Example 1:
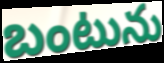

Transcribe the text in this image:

బంటును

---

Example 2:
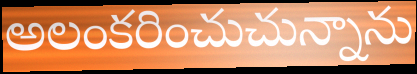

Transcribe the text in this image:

అలంకరించుచున్నాను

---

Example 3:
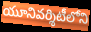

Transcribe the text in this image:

యూనివర్శిటీలోని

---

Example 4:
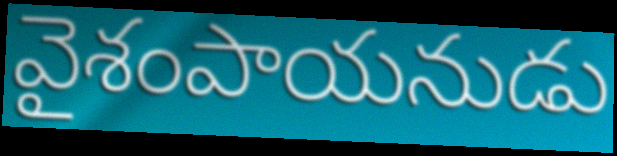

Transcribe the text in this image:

వైశంపాయనుడు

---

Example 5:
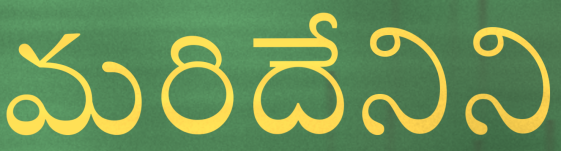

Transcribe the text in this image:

మరిదేనిని